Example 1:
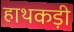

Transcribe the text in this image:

हाथकड़ी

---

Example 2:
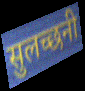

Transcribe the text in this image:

सुलच्छनी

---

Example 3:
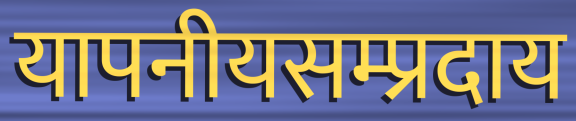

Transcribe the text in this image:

यापनीयसम्प्रदाय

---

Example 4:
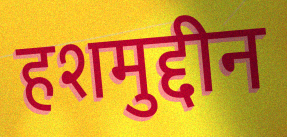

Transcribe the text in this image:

हशमुद्दीन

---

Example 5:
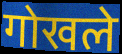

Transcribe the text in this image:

गोखले